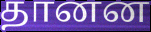
தானன